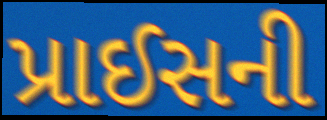
પ્રાઈસની